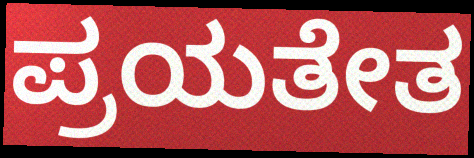
ಪ್ರಯತೇತ